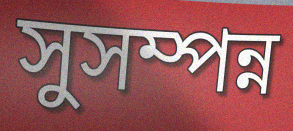
সুসম্পন্ন